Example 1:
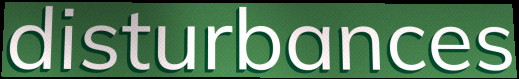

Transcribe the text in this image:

disturbances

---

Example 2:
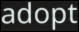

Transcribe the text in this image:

adopt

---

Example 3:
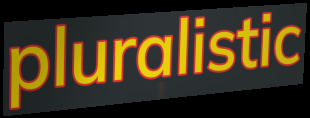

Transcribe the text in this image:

pluralistic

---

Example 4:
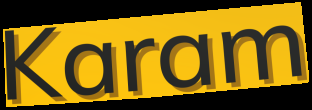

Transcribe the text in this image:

Karam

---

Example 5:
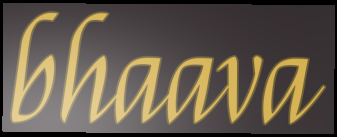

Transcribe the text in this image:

bhaava